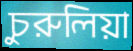
চুৰুলিয়া